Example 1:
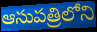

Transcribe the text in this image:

ఆసుపత్రిలోని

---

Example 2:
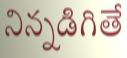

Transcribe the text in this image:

నిన్నడిగితే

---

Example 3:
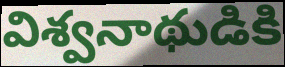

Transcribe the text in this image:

విశ్వనాథుడికి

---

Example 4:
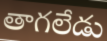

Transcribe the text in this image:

తాగలేడు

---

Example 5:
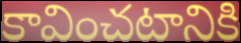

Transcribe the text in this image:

కావించటానికి